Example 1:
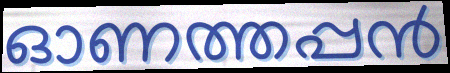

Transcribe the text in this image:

ഓണത്തപ്പൻ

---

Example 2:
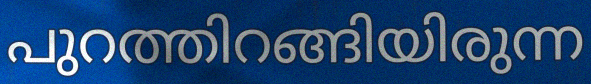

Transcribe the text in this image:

പുറത്തിറങ്ങിയിരുന്ന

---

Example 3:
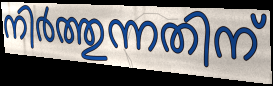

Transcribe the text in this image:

നിർത്തുന്നതിന്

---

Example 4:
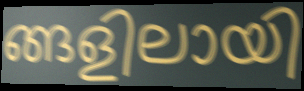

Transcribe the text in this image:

ങ്ങളിലായി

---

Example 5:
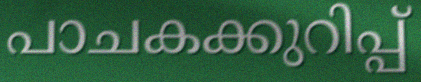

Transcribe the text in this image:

പാചകക്കുറിപ്പ്